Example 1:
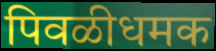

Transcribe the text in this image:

पिवळीधमक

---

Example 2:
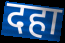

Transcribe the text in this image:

दहा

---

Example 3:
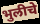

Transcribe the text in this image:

भुलीचे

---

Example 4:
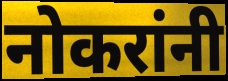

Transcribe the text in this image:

नोकरांनी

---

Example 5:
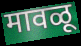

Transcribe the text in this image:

मावळू